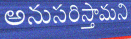
అనుసరిస్తామని